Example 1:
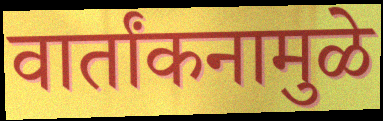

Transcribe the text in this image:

वार्तांकनामुळे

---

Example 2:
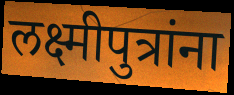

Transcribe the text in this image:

लक्ष्मीपुत्रांना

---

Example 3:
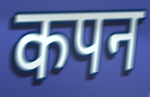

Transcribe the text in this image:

कपन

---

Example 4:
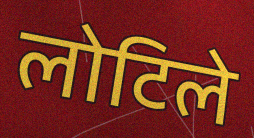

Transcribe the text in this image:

लोटिले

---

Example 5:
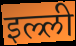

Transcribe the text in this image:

इल्ली